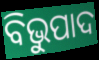
ବିଭୁପାଦ